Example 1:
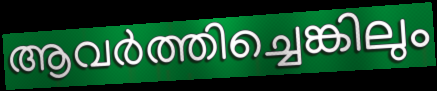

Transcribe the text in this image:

ആവർത്തിച്ചെങ്കിലും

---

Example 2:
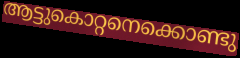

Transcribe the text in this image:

ആട്ടുകൊറ്റനെക്കൊണ്ടു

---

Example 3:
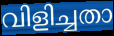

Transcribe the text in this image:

വിളിച്ചതാ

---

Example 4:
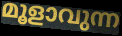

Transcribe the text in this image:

മൂളാവുന്ന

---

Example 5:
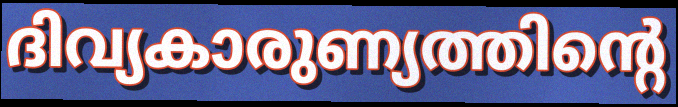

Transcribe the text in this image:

ദിവ്യകാരുണ്യത്തിന്റെ